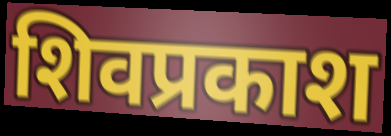
शिवप्रकाश